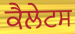
ਕੈਲੇਟਸ